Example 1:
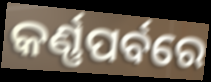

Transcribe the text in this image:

କର୍ଣ୍ଣପର୍ବରେ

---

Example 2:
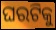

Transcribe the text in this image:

ଘରଟିକୁ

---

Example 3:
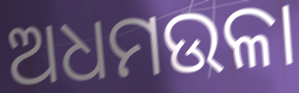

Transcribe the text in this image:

ଅଧମଉଳା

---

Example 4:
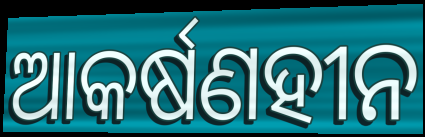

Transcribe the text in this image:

ଆକର୍ଷଣହୀନ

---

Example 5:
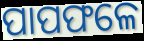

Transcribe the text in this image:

ପାପଫଳେ